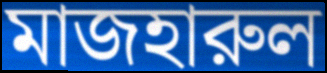
মাজহারুল